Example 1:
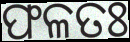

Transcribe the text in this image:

ଫଳତଃ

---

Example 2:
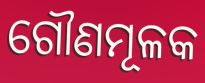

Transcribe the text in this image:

ଗୌଣମୂଳକ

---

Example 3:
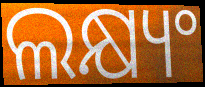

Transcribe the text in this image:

ଲକ୍ଷ୍ୟଂ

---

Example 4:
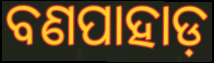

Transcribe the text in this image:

ବଣପାହାଡ଼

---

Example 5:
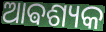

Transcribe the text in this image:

ଆଵଶ୍ୟକ